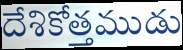
దేశికోత్తముడు